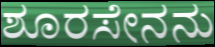
ಶೂರಸೇನನು